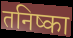
तनिष्का